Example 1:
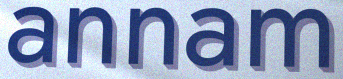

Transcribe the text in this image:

annam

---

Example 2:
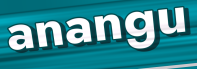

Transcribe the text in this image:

anangu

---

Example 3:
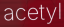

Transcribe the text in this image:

acetyl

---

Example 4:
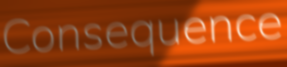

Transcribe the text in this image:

Consequence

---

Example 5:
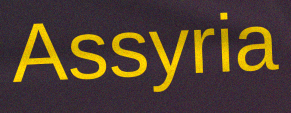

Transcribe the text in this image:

Assyria